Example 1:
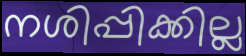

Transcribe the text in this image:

നശിപ്പിക്കില്ല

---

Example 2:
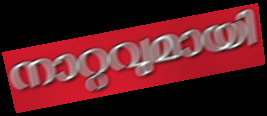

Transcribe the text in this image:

നാറ്റവുമായി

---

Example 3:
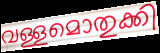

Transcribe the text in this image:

വള്ളമൊതുക്കി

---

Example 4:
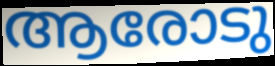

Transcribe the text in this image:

ആരോടു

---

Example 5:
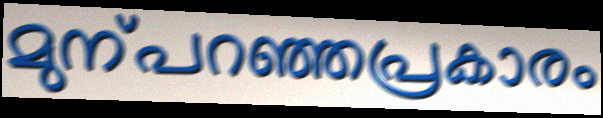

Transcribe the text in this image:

മുന്പറഞ്ഞപ്രകാരം